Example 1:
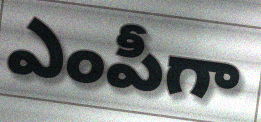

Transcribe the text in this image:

ఎంపీగా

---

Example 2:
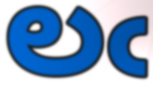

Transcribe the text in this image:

లఁ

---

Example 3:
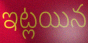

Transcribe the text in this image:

ఇట్లయిన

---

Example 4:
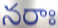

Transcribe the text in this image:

నరాః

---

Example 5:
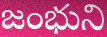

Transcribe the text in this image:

జంభుని